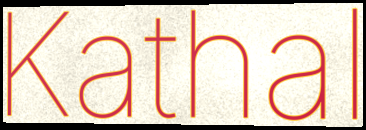
Kathal